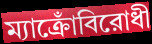
ম্যাক্রোঁবিরোধী